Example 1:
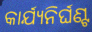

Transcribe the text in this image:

କାର୍ଯ୍ୟନିର୍ଘଣ୍ଟ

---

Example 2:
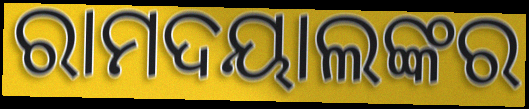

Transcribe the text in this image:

ରାମଦୟାଲଙ୍କର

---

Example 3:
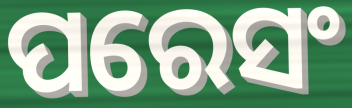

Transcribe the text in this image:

ପରେସଂ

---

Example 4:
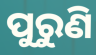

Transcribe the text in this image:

ପୁରୁଣି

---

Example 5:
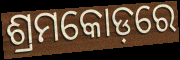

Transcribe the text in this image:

ଶ୍ରମକୋଡ଼ରେ